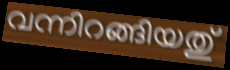
വന്നിറങ്ങിയതു്